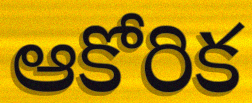
ఆకోరిక